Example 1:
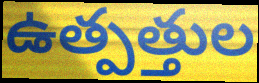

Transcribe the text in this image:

ఉత్పత్తుల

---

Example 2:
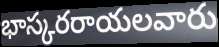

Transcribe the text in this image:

భాస్కరరాయలవారు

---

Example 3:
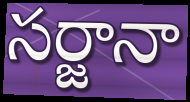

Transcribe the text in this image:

సర్జానా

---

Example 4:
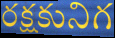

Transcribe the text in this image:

రక్షకునిగ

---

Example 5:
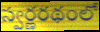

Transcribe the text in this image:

స్వర్ణరథంలో